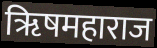
ॠिषमहाराज